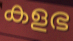
കളഭ